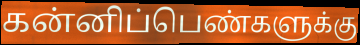
கன்னிப்பெண்களுக்கு